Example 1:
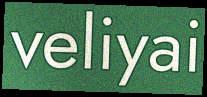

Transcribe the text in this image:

veliyai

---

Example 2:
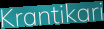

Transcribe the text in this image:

Krantikari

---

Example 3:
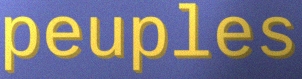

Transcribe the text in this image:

peuples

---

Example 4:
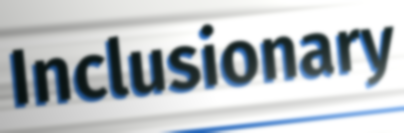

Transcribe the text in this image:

Inclusionary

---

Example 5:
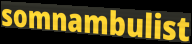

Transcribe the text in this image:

somnambulist